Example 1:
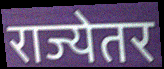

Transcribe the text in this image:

राज्येतर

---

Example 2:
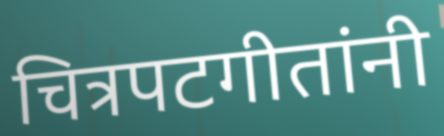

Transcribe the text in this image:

चित्रपटगीतांनी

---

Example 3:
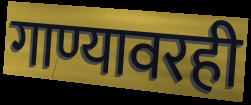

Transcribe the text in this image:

गाण्यावरही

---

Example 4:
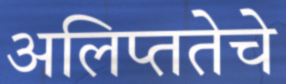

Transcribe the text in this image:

अलिप्ततेचे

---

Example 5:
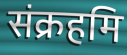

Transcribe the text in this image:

संक्रहमि